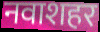
नवाशहर